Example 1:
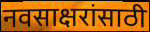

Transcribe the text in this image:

नवसाक्षरांसाठी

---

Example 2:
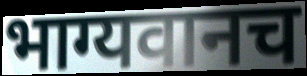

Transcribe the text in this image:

भाग्यवानच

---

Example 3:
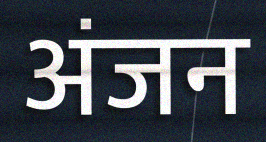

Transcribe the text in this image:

अंजन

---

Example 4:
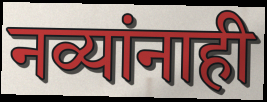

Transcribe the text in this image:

नव्यांनाही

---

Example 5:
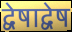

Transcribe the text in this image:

द्वेषाद्वेष